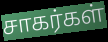
சாகர்கள்